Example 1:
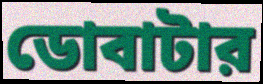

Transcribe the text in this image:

ডোবাটার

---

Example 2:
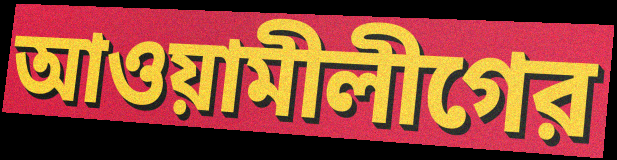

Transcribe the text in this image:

আওয়ামীলীগের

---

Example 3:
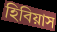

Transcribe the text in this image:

হিবিয়াস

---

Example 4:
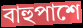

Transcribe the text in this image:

বাহুপাশে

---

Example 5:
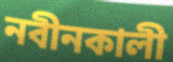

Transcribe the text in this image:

নবীনকালী